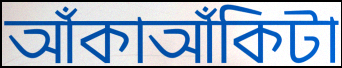
আঁকাআঁকিটা